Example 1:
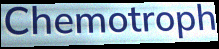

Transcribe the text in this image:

Chemotroph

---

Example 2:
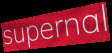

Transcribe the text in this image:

supernal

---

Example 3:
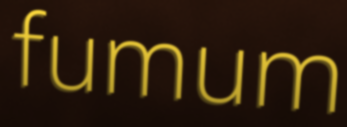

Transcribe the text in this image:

fumum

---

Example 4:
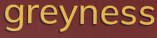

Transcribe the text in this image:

greyness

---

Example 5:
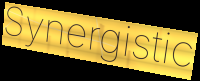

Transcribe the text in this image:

Synergistic